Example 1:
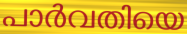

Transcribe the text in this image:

പാർവതിയെ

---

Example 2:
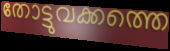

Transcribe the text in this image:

തോട്ടുവക്കത്തെ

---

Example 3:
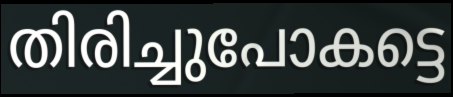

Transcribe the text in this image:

തിരിച്ചുപോകട്ടെ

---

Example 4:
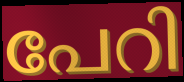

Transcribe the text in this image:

പേറി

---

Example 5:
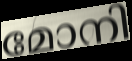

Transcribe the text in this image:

മോനി